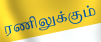
ரணிலுக்கும்